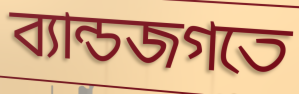
ব্যান্ডজগতে